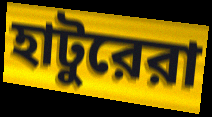
হাটুরেরা